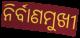
ନିର୍ବାଣମୁଖୀ